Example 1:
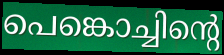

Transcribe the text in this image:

പെങ്കൊച്ചിന്റെ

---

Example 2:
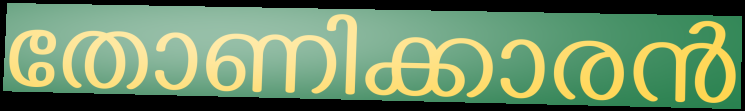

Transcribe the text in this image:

തോണിക്കാരൻ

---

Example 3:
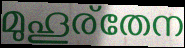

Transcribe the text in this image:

മുഹൂര്തേന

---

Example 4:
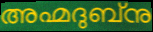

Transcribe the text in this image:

അഹ്മദുബ്നു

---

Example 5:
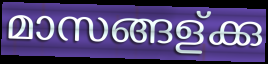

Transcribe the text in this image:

മാസങ്ങള്ക്കു